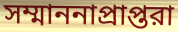
সম্মাননাপ্রাপ্তরা